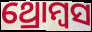
ଥ୍ରୋମ୍ବସ